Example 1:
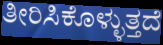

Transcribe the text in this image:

ತೀರಿಸಿಕೊಳ್ಳುತ್ತದೆ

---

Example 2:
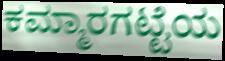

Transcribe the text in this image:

ಕಮ್ಮಾರಗಟ್ಟೆಯ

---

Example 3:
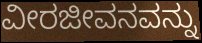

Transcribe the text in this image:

ವೀರಜೀವನವನ್ನು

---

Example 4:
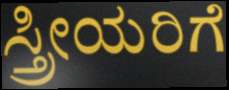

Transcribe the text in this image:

ಸ್ತ್ರೀಯರಿಗೆ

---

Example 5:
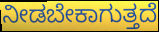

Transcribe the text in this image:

ನೀಡಬೇಕಾಗುತ್ತದೆ